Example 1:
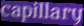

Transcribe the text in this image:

capillary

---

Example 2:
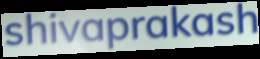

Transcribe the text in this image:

shivaprakash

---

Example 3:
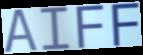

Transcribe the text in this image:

AIFF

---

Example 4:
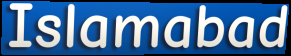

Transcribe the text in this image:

Islamabad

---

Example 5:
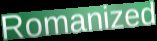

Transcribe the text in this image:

Romanized